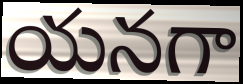
యనగా